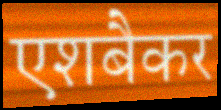
एशबैकर